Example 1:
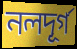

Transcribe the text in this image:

নলদূর্গ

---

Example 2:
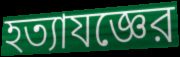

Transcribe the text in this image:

হত্যাযজ্ঞের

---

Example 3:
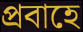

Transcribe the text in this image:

প্রবাহে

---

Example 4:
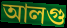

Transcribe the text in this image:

আলগু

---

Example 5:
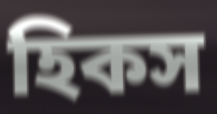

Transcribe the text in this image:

হিকস